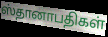
ஸ்தானாபதிகள்